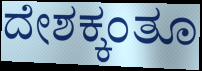
ದೇಶಕ್ಕಂತೂ